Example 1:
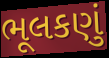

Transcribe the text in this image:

ભૂલકણું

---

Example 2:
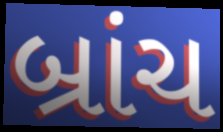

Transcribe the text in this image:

બ્રાંચ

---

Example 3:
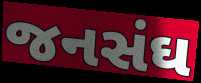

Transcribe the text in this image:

જનસંઘ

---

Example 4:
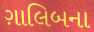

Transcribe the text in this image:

ગ઼ાલિબના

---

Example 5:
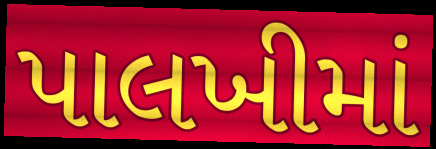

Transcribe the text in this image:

પાલખીમાં